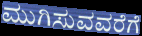
ಮುಗಿಸುವವರೆಗೆ